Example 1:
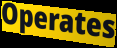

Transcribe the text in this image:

Operates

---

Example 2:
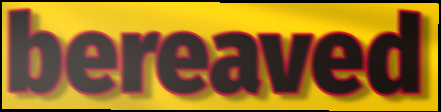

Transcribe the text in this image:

bereaved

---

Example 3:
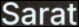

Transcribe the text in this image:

Sarat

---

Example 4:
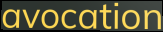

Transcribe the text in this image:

avocation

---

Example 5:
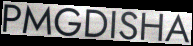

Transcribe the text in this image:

PMGDISHA